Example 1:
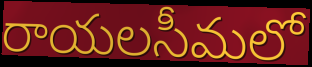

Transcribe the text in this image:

రాయలసీమలో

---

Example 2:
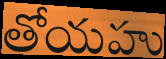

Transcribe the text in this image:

తోయహు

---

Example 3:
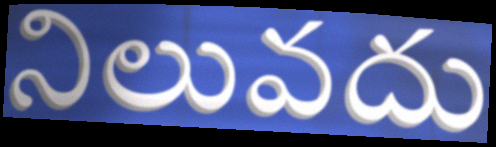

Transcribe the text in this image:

నిలువదు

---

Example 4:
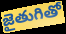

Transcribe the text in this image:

జైతుగితో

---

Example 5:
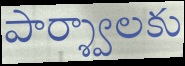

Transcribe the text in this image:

పార్శ్వాలకు